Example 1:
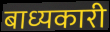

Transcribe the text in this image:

बाध्‍यकारी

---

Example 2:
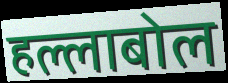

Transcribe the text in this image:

हल्लाबोल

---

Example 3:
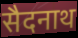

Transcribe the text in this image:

सैदनाथ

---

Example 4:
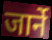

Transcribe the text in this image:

जार्ने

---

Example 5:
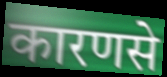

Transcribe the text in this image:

कारणसे